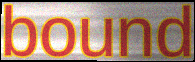
bound